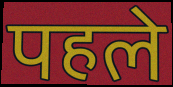
पहले